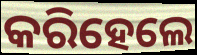
କରିହେଲେ